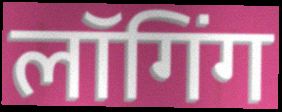
लॉगिंग